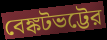
বেঙ্কটভট্টের